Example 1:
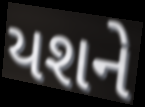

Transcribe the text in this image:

યશને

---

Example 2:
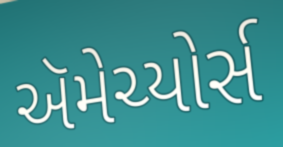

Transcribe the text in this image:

ઍમેચ્યોર્સ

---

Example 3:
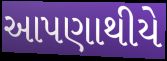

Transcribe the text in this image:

આપણાથીયે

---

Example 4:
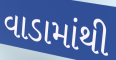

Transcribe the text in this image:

વાડામાંથી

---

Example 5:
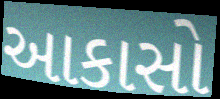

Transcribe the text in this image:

આકાસો